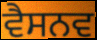
ਵੈਸਨਵ